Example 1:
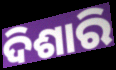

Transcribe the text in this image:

ଦିଶାରି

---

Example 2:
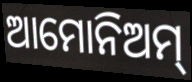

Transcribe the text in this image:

ଆମୋନିଅମ୍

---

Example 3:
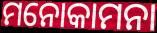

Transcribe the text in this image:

ମନୋକାମନା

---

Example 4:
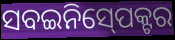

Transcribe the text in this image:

ସବଇନିସ୍‍ପେକ୍ଟର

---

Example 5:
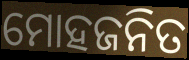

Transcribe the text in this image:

ମୋହଜନିତ